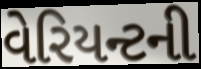
વેરિયન્ટની